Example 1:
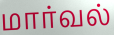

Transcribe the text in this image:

மார்வல்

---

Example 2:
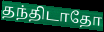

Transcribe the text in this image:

தந்திடாதோ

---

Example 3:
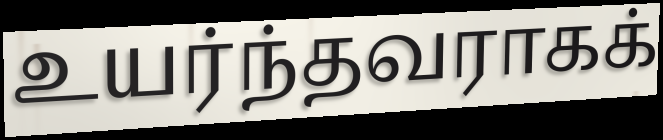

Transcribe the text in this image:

உயர்ந்தவராகக்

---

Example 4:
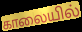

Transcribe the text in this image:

காலையில்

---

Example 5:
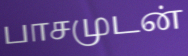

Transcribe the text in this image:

பாசமுடன்